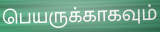
பெயருக்காகவும்